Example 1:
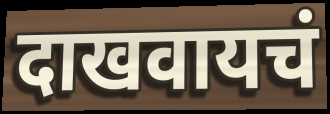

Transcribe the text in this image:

दाखवायचं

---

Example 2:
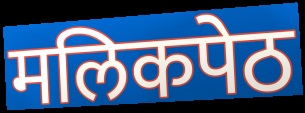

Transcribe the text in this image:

मलिकपेठ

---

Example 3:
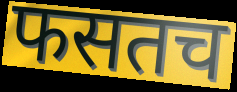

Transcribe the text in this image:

फसतच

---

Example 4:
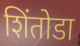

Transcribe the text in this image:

शिंतोडा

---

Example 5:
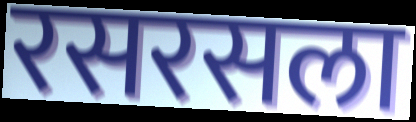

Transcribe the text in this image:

रसरसला